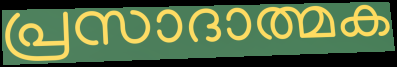
പ്രസാദാത്മക